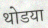
थोडया